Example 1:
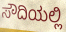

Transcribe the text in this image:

ಸೌದಿಯಲ್ಲಿ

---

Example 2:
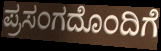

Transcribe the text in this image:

ಪ್ರಸಂಗದೊಂದಿಗೆ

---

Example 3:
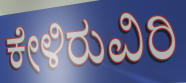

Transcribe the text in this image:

ಕೇಳಿರುವಿರಿ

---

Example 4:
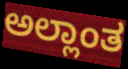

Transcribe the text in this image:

ಅಲ್ಲಾಂತ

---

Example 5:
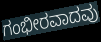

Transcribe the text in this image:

ಗಂಭೀರವಾದವು